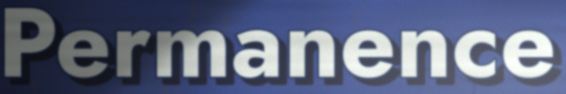
Permanence